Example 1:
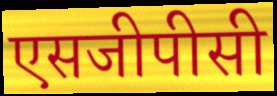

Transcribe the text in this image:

एसजीपीसी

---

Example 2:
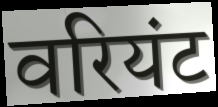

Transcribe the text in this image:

वरियंट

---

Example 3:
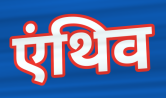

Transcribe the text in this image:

एंथिव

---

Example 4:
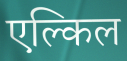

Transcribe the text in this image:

एल्किल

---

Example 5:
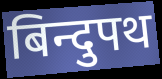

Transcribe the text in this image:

बिन्दुपथ